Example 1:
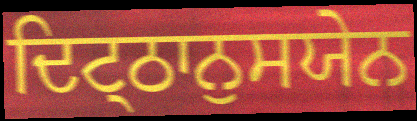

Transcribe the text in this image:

ਦਿਟ੍ਠਾਨੁਸਯੇਨ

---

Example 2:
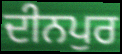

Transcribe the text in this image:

ਦੀਨਪੁਰ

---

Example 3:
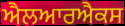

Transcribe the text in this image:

ਐਲਆਰਐਕਸ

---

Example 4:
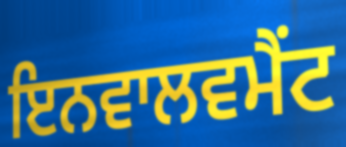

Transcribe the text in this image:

ਇਨਵਾਲਵਮੈਂਟ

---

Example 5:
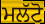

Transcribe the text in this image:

ਮਲੱਟੋ